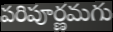
పరిపూర్ణమగు